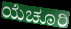
ಯೆಚೂರಿ